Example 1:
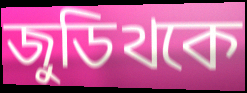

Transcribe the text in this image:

জুডিথকে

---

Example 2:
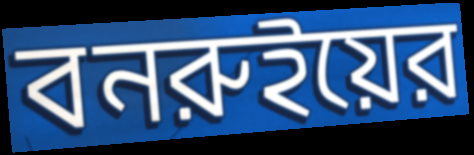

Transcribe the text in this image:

বনরুইয়ের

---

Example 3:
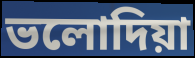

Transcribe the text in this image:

ভলোদিয়া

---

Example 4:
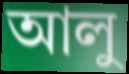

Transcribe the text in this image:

আলু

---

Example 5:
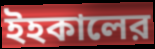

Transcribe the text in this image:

ইহকালের